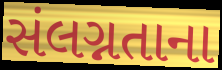
સંલગ્નતાના